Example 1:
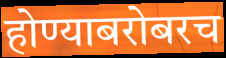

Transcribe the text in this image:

होण्याबरोबरच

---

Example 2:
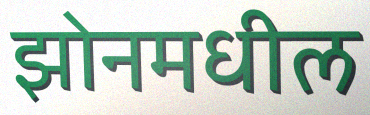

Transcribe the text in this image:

झोनमधील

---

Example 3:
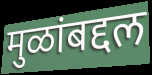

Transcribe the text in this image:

मुळांबद्दल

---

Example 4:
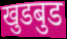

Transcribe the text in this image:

खुडबुड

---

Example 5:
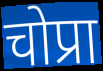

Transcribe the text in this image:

चोप्रा